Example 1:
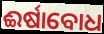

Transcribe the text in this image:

ଈର୍ଷାବୋଧ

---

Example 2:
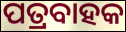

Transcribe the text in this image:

ପତ୍ରବାହକ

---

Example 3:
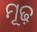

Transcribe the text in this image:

ମୂଢ଼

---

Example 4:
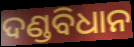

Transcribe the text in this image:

ଦଣ୍ଡବିଧାନ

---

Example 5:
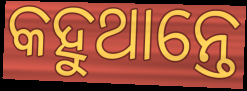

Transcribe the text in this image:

କହୁଥାନ୍ତେ